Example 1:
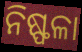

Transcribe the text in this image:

ନିଷ୍ଫଳା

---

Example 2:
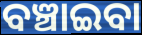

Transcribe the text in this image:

ବଞ୍ଚାଇବା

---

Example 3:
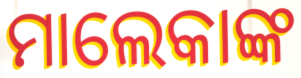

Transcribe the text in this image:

ମାଲେକାଙ୍କ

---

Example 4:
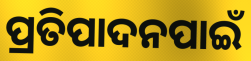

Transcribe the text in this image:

ପ୍ରତିପାଦନପାଇଁ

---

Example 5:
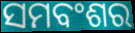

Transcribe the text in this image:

ସମବଂଶର